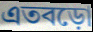
এতবড়ো